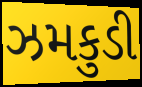
ઝમકુડી